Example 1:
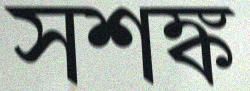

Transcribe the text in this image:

সশঙ্ক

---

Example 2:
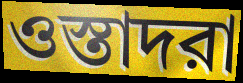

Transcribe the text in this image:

ওস্তাদরা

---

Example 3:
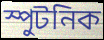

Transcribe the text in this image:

স্পুটনিক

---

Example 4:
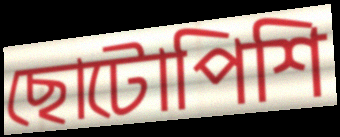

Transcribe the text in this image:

ছোটোপিশি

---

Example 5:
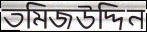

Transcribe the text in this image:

তমিজউদ্দিন